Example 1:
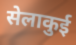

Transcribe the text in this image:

सेलाकुई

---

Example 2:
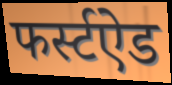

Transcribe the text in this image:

फर्स्टऐड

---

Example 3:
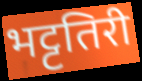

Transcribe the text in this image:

भट्टतिरी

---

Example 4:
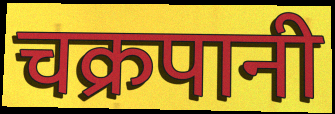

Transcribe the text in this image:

चक्रपानी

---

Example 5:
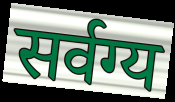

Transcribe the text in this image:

सर्वग्य